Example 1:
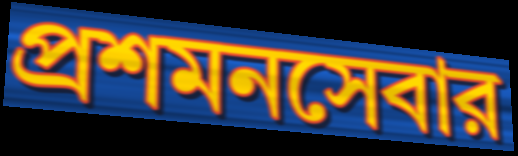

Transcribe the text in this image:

প্রশমনসেবার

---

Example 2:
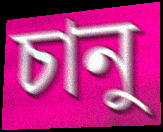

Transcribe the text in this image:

চানু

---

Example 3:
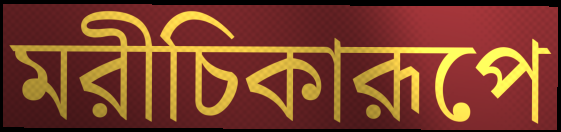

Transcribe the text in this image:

মরীচিকারূপে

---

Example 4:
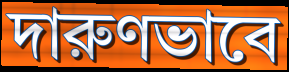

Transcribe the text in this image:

দারুণভাবে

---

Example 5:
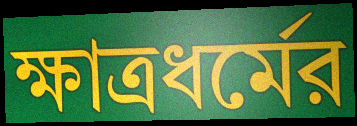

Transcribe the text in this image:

ক্ষাত্রধর্মের